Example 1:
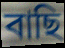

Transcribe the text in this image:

বাছি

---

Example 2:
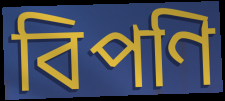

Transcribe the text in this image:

বিপণি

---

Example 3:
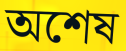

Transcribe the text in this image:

অশেষ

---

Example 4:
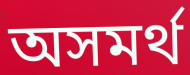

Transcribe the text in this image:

অসমৰ্থ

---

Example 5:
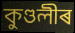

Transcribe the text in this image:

কুণ্ডলীৰ